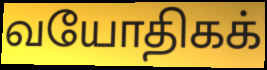
வயோதிகக்